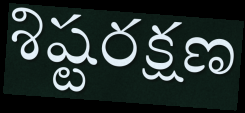
శిష్టరక్షణ